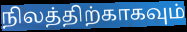
நிலத்திற்காகவும்